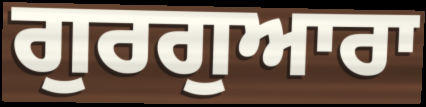
ਗੁਰਗੁਆਰਾ